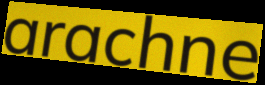
arachne